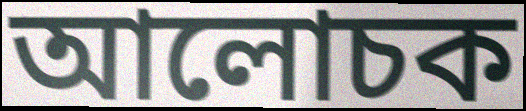
আলোচক